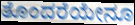
ತೊಂದರೆಯೇನೂ